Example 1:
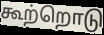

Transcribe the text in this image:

கூற்றொடு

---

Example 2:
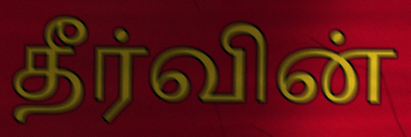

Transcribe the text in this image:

தீர்வின்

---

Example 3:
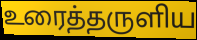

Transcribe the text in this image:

உரைத்தருளிய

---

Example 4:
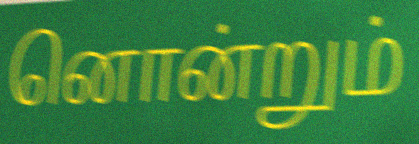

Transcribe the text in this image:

னொன்றும்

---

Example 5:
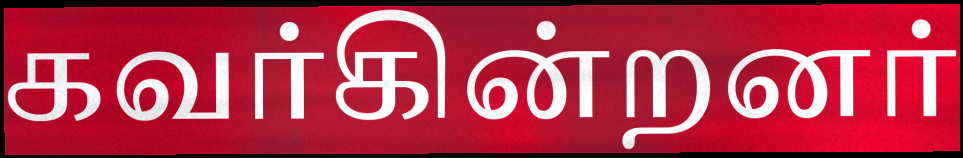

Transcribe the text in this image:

கவர்கின்றனர்